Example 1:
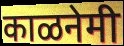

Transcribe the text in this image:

काळनेमी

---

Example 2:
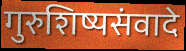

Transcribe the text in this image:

गुरुशिष्यसंवादे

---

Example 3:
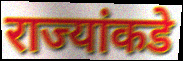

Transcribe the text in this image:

राज्यांकडे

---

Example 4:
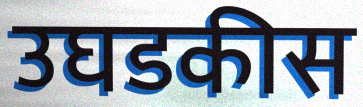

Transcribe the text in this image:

उघडकीस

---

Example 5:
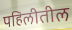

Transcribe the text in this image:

पहिलीतील